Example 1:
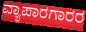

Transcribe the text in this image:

ವ್ಯಾಪಾರಗಾರರ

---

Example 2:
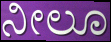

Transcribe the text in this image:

ನೀಲೂ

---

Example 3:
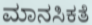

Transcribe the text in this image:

ಮಾನಸಿಕತೆ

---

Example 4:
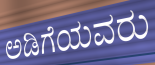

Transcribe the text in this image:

ಅಡಿಗೆಯವರು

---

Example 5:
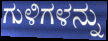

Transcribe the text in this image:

ಗುಳಿಗಳನ್ನು